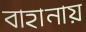
বাহানায়